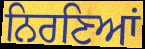
ਨਿਰਣਿਆਂ